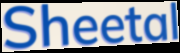
Sheetal